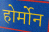
होर्मोन